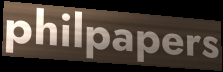
philpapers